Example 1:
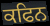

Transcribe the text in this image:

ਕਫਿਨ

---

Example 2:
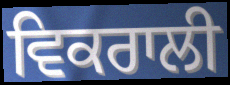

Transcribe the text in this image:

ਵਿਕਰਾਲੀ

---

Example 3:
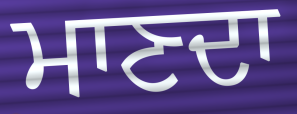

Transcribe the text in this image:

ਮਾਣਦਾ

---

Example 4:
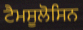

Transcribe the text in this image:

ਟੈਮਸੂਲੋਸਿਨ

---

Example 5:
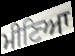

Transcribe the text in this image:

ਮੀਣਿਆ